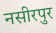
नसीरपुर